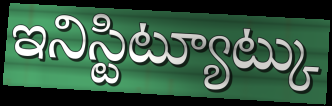
ఇనిస్టిట్యూట్కు